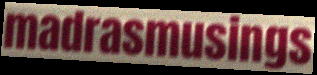
madrasmusings